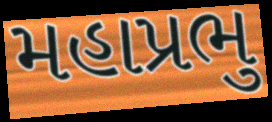
મહાપ્રભુ